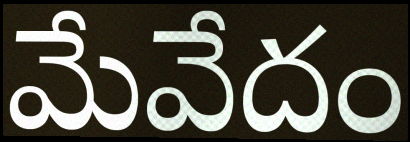
మేవేదం